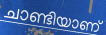
ചാണ്ടിയാണ്